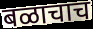
बळाचाच